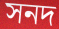
সনদ